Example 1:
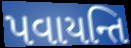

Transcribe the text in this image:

પવાયન્તિ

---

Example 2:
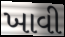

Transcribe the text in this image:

ખાવી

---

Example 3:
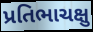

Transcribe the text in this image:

પ્રતિભાચક્ષુ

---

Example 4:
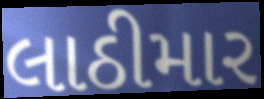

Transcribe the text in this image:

લાઠીમાર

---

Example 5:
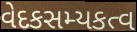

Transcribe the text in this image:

વેદકસમ્યકત્વ